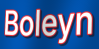
Boleyn